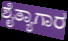
ಶೈತ್ಯಾಗಾರ